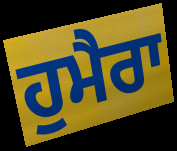
ਹੁਮੈਰਾ